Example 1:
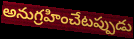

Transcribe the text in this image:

అనుగ్రహించేటప్పుడు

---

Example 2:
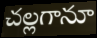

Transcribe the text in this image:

చల్లగానూ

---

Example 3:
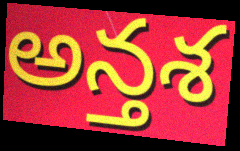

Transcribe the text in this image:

అన్తశ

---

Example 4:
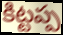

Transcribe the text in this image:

కిట్టప్ప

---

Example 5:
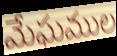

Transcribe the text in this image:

మేఘముల